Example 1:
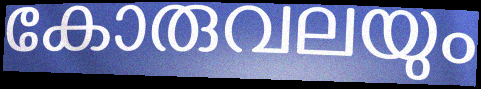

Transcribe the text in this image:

കോരുവലയും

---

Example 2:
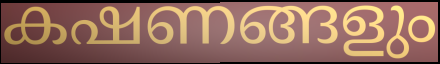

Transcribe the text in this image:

കഷണങ്ങളും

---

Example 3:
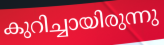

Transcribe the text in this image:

കുറിച്ചായിരുന്നു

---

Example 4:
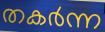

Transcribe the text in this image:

തകർന്ന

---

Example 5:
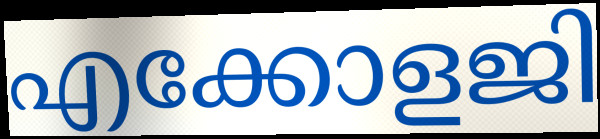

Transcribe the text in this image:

എക്കോളജി